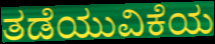
ತಡೆಯುವಿಕೆಯ